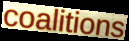
coalitions